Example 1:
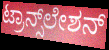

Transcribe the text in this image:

ಟ್ರಾನ್ಸ್‌ಲೇಶನ್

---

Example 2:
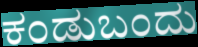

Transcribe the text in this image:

ಕಂಡುಬಂದು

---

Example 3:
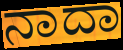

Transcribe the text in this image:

ನಾದಾ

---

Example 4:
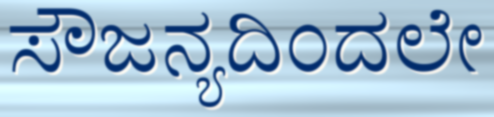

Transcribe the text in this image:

ಸೌಜನ್ಯದಿಂದಲೇ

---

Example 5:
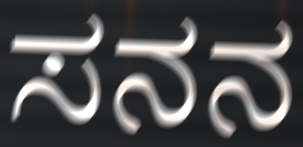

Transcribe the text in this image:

ಸನನ